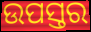
ଉପସ୍ତର